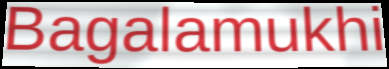
Bagalamukhi